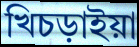
খিচড়াইয়া